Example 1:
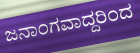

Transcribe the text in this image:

ಜನಾಂಗವಾದ್ದರಿಂದ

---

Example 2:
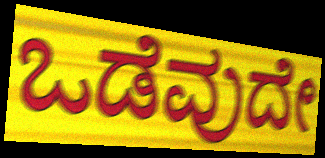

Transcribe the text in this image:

ಒಡೆವುದೇ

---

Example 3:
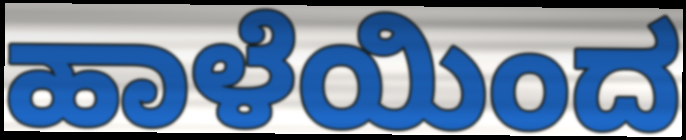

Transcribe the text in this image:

ಹಾಳೆಯಿಂದ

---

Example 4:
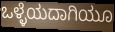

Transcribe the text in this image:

ಒಳ್ಳೆಯದಾಗಿಯೂ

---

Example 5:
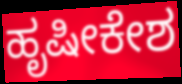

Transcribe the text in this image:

ಹೃಷೀಕೇಶ